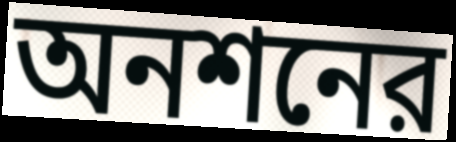
অনশনের